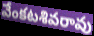
వేంకటశివరావు